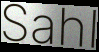
Sahl